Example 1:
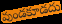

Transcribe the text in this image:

వుండకూడదు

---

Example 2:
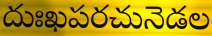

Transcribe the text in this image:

దుఃఖపరచునెడల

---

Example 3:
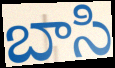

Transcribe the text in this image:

బాసి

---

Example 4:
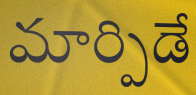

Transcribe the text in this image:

మార్పిడే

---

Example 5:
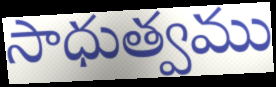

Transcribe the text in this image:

సాధుత్వము